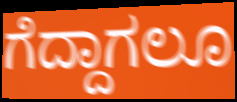
ಗೆದ್ದಾಗಲೂ